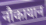
नौकायान